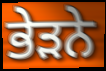
ਭੇੜਨੇ